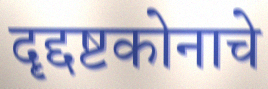
दृद्दष्टकोनाचे